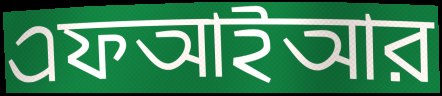
এফআইআর